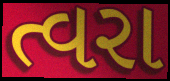
ત્વરા